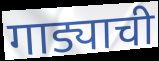
गाड्याची